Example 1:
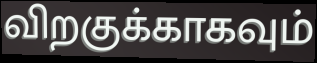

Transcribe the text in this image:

விறகுக்காகவும்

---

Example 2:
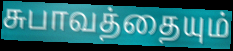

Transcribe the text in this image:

சுபாவத்தையும்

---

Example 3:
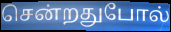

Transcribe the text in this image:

சென்றதுபோல்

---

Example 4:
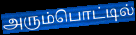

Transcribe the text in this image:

அரும்பொட்டில்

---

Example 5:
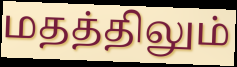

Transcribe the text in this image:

மதத்திலும்